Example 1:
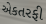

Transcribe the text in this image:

એકતરફી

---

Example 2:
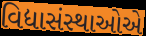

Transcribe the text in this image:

વિદ્યાસંસ્થાઓએ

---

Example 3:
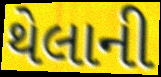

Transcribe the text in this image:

થેલાની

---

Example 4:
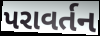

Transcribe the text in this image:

પરાવર્તન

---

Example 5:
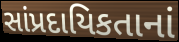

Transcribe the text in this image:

સાંપ્રદાયિકતાનાં